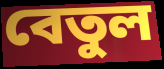
বেতুল